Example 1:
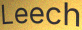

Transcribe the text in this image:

Leech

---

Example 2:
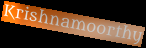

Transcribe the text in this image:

Krishnamoorthy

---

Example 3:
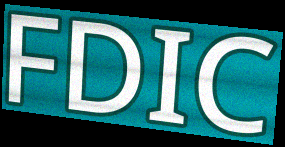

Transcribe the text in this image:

FDIC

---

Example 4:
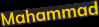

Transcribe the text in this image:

Mahammad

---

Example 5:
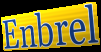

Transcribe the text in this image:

Enbrel